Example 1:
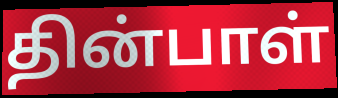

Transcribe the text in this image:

தின்பாள்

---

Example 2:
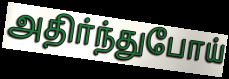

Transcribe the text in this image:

அதிர்ந்துபோய்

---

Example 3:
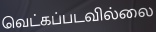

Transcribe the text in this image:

வெட்கப்படவில்லை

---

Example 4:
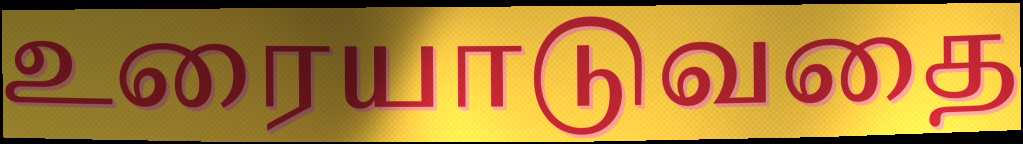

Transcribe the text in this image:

உரையாடுவதை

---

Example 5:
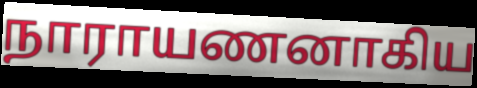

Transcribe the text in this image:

நாராயணனாகிய